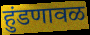
हुंडणावळ